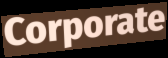
Corporate